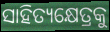
ସାହିତ୍ୟକ୍ଷେତ୍ରକୁ